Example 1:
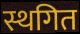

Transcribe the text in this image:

स्थगित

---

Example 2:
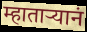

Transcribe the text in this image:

म्हातार्‍यानं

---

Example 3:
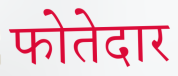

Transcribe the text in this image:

फोतेदार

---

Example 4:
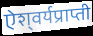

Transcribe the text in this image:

ऐश्वर्यप्राप्ती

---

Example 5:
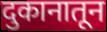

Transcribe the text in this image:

दुकानातून